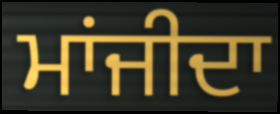
ਮਾਂਜੀਦਾ